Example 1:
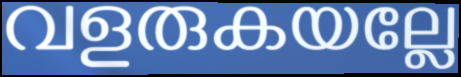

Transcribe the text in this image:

വളരുകയല്ലേ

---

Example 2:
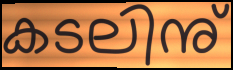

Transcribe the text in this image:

കടലിനു്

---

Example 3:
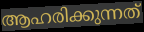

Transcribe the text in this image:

ആഹരിക്കുന്നത്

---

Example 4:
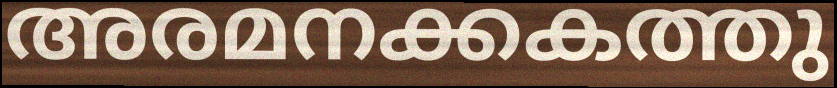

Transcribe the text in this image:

അരമനക്കകത്തു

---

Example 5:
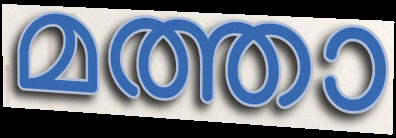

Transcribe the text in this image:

മത്താ